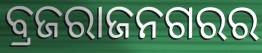
ବ୍ରଜରାଜନଗରର